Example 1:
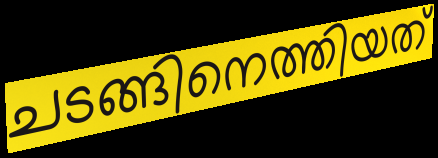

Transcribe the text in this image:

ചടങ്ങിനെത്തിയത്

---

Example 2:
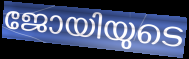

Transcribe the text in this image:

ജോയിയുടെ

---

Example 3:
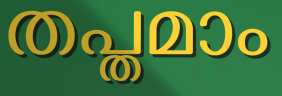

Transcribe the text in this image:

തപ്തമാം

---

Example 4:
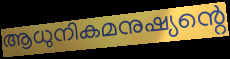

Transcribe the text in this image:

ആധുനികമനുഷ്യന്റെ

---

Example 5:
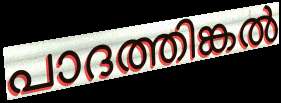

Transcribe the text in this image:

പാദത്തിങ്കൽ